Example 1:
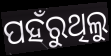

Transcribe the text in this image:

ପହଁରୁଥିଲୁ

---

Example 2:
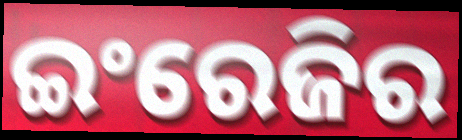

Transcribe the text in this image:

ଇଂରେଜିର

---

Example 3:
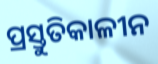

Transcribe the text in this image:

ପ୍ରସ୍ତୁତିକାଳୀନ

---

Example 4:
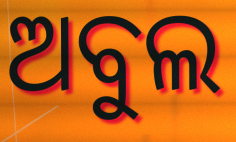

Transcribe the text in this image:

ଅବୁଲ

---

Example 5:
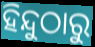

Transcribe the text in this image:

ହିନ୍ଦୁଠାରୁ